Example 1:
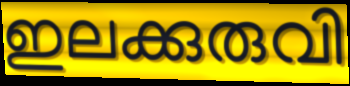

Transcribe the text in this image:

ഇലക്കുരുവി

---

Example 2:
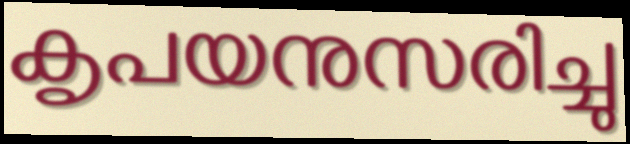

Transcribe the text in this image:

കൃപയനുസരിച്ചു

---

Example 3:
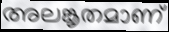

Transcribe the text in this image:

അലങ്കൃതമാണ്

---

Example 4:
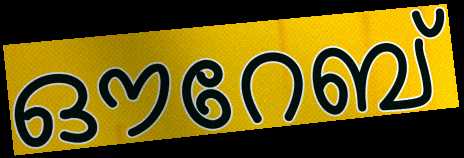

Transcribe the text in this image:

ഔറേബ്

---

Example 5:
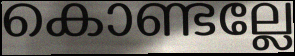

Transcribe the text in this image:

കൊണ്ടല്ലേ